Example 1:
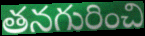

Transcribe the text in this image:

తనగురించి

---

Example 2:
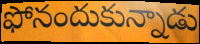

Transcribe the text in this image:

ఫోనందుకున్నాడు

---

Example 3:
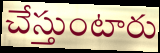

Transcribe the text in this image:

చేస్తుంటారు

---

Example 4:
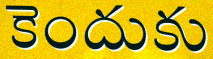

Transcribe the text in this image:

కెందుకు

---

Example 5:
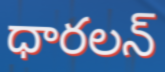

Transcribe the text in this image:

ధారలన్